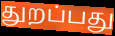
துறப்பது